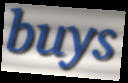
buys